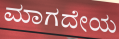
ಮಾಗದೇಯ